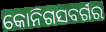
କୋନିଗସବର୍ଗର